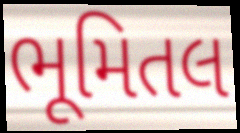
ભૂમિતલ